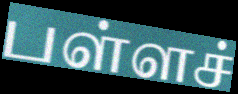
பள்ளச்